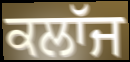
ਕਲਾੱਜ